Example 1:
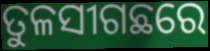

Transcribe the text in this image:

ତୁଳସୀଗଛରେ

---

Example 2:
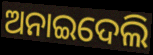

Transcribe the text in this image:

ଅନାଇଦେଲି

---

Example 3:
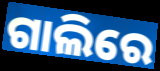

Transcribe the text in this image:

ଗାଲିରେ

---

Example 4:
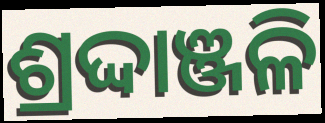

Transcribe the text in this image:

ଶ୍ରଦ୍ଦାଞ୍ଜଳି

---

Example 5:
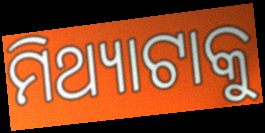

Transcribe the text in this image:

ମିଥ୍ୟାଟାକୁ